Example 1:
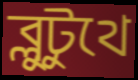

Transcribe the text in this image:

ব্লুটুথে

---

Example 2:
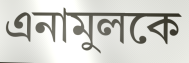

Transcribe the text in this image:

এনামুলকে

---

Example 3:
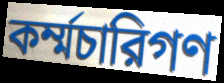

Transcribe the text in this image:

কর্ম্মচারিগণ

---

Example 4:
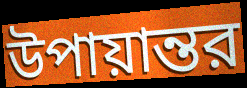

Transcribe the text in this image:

উপায়ান্তর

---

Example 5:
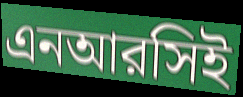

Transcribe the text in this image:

এনআরসিই